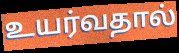
உயர்வதால்